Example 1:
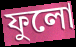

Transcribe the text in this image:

ফুলো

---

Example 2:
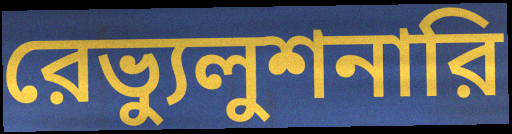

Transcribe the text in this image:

রেভ্যুলুশনারি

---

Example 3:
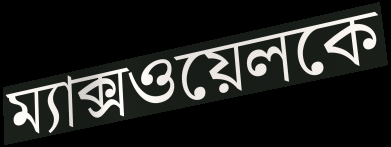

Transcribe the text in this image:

ম্যাক্সওয়েলকে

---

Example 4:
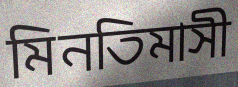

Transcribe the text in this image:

মিনতিমাসী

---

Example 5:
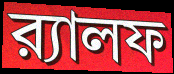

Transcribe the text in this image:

র‍্যালফ